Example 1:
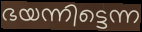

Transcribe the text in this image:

ഭയന്നിട്ടെന്ന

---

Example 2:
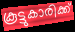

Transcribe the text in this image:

കൂട്ടുകാരിക്ക്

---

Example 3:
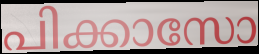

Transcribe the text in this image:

പിക്കാസോ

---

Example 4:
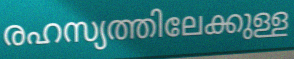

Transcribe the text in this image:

രഹസ്യത്തിലേക്കുള്ള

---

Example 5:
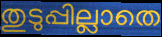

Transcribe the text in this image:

തുടുപ്പില്ലാതെ